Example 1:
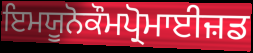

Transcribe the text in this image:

ਇਮਯੂਨੋਕੌਮਪ੍ਰੋਮਾਈਜ਼ਡ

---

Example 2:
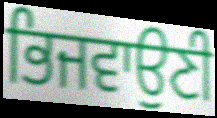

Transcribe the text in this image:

ਭਿਜਵਾਉਣੀ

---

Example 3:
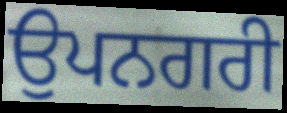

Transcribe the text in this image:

ਉਪਨਗਰੀ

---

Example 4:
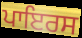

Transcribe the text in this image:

ਪਾਇਰਸ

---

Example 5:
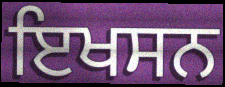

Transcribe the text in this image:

ਇਖਸਨ